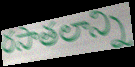
రసాతలాన్ని